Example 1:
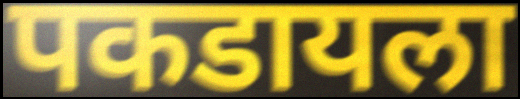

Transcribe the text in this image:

पकडायला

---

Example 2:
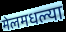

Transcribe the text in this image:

मेलमधल्या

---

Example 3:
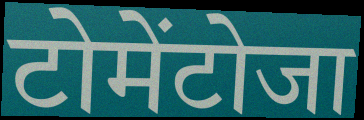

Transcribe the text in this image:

टोमेंटोजा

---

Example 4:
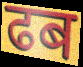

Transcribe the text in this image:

ढब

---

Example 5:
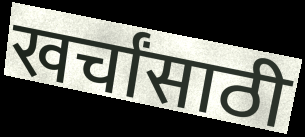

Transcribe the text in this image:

खर्चांसाठी